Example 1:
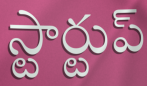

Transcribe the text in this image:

స్టార్టుప్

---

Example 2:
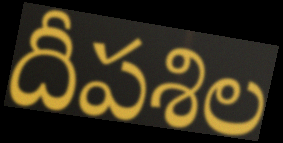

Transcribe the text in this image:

దీపశిల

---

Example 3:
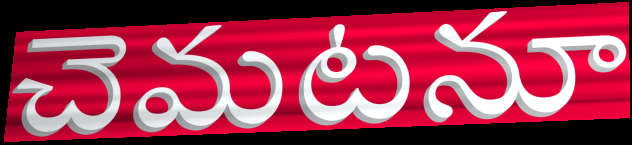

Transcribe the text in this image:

చెమటనూ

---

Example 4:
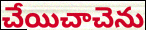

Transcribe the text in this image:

చేయిచాచెను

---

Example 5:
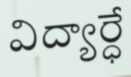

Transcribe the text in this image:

విద్యార్ధే